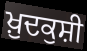
ਖ਼ੁਦਕੁਸ਼ੀ